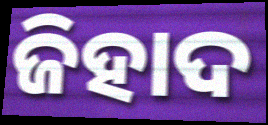
ଜିହାଦ